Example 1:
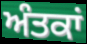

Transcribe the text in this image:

ਅੰਤਕਾਂ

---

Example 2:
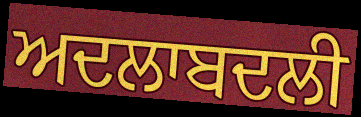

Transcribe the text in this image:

ਅਦਲਾਬਦਲੀ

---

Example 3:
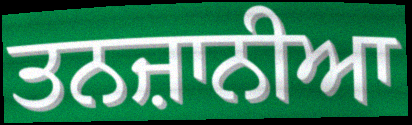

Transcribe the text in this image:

ਤਨਜ਼ਾਨੀਆ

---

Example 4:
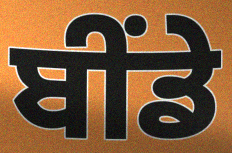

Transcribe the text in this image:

ਬੀਂਡੇ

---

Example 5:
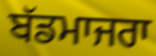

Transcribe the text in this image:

ਬੱਡਮਾਜਰਾ